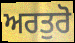
ਅਰਤੁਰੋ